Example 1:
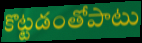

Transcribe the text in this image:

కొట్టడంతోపాటు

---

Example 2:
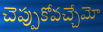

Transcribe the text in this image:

చెప్పుకోవచ్చేమో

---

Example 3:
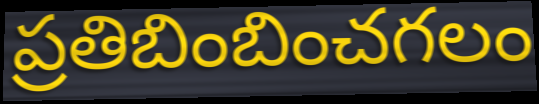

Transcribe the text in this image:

ప్రతిబింబించగలం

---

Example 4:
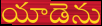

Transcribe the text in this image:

యాడెను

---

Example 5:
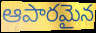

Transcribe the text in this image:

ఆపారమైన